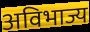
अविभाज्य